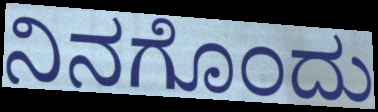
ನಿನಗೊಂದು